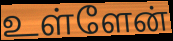
உள்ளேன்